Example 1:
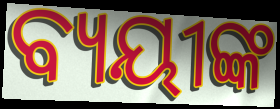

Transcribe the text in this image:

ବ୍ୟୟୀଙ୍କ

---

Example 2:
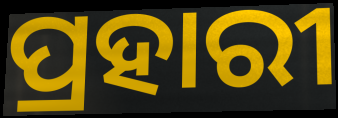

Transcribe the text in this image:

ପ୍ରହାରୀ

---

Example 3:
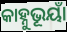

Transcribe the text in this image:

କାହ୍ନୁଭୂୟାଁ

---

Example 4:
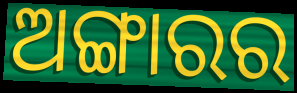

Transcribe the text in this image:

ଅଙ୍ଗାରର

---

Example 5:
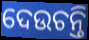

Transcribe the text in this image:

ଦେଉଚନ୍ତି